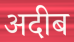
अदीब